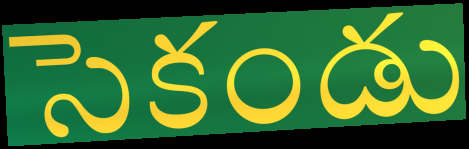
సెకండు